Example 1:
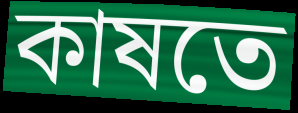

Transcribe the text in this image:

কাষতে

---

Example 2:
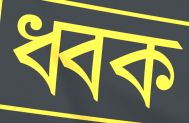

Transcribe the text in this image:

ধ্বক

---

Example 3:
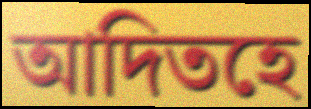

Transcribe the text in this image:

আদিতহে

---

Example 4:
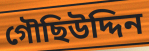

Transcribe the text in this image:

গৌছিউদ্দিন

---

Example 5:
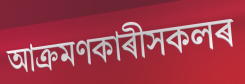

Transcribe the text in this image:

আক্ৰমণকাৰীসকলৰ